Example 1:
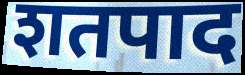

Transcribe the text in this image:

शतपाद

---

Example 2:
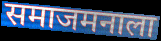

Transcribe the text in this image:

समाजमनाला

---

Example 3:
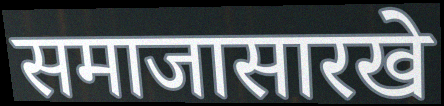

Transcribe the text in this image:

समाजासारखे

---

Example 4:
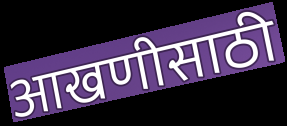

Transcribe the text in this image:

आखणीसाठी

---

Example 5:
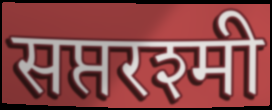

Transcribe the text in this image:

सप्तरश्मी